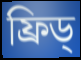
ফ্ৰিড্